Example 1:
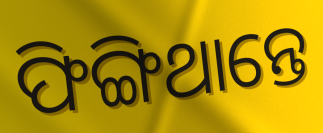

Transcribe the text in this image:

ଫିଙ୍ଗିଥାନ୍ତେ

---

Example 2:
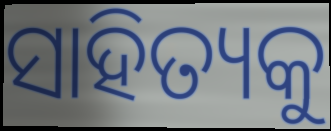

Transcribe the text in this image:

ସାହିତ୍ୟକୁ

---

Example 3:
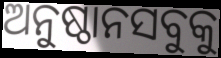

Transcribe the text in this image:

ଅନୁଷ୍ଠାନସବୁକୁ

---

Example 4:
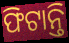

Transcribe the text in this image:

ଫିଟାନ୍ତି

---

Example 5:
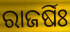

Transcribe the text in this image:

ରାଜର୍ଷିଃ